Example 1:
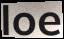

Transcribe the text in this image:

Ioe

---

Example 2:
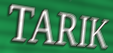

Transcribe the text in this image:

TARIK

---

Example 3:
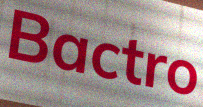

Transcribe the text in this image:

Bactro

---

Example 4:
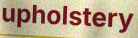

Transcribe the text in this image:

upholstery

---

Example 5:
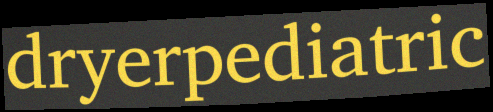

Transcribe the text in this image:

dryerpediatric